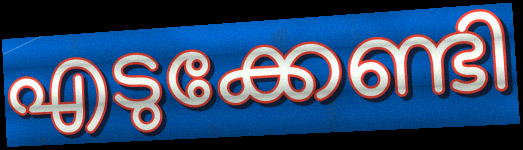
എടുക്കേണ്ടി